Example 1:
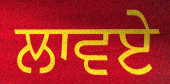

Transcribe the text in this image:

ਲਾਵਏ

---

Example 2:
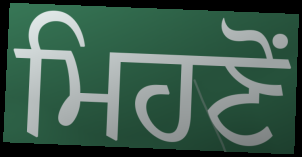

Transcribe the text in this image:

ਮਿਹਣੋਂ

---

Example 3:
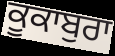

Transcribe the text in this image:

ਕੂਕਾਬੁਰਾ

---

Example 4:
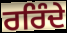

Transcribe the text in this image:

ਰਰਿੰਦੇ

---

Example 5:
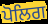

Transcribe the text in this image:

ਪੋਲਿਗ